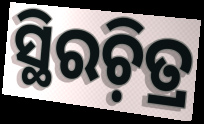
ସ୍ଥିରଚ଼ିତ୍ର